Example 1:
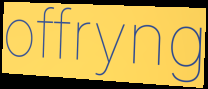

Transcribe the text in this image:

offryng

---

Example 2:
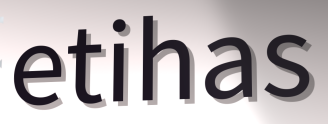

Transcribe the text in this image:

etihas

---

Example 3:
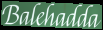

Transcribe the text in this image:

Balehadda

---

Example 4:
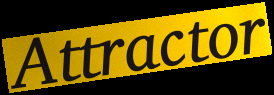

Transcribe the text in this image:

Attractor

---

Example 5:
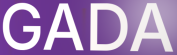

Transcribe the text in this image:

GADA